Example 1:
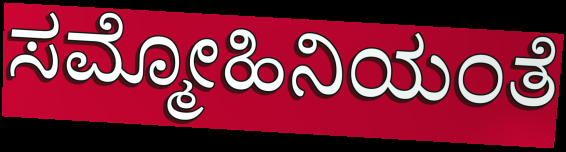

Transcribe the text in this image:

ಸಮ್ಮೋಹಿನಿಯಂತೆ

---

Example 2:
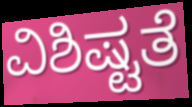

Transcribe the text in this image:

ವಿಶಿಷ್ಟತೆ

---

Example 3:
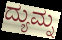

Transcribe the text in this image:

ದ್ಯುಮ್ನ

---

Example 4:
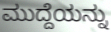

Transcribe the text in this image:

ಮುದ್ದೆಯನ್ನು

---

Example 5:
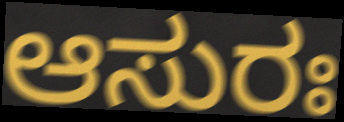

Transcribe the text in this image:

ಆಸುರಃ